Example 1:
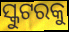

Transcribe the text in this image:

ସ୍କୁଟରକୁ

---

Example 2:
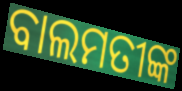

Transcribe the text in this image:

ବାଲମତୀଙ୍କ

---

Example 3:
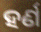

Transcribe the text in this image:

ହର୍ଣ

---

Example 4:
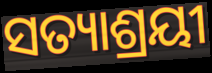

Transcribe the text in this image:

ସତ୍ୟାଶ୍ରୟୀ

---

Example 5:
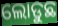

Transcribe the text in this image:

ଲୋଡୁଛ